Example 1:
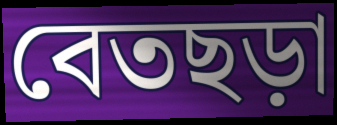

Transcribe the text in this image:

বেতছড়া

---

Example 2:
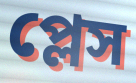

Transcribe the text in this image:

প্লেস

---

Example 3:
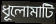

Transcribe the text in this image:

ধূলোমাটি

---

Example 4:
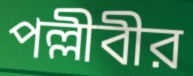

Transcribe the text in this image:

পল্লীবীর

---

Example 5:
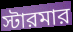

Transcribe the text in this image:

স্টারমার